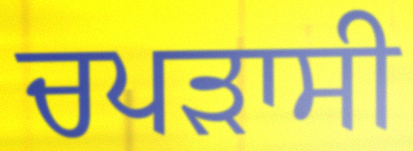
ਚਪੜਾਸੀ